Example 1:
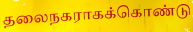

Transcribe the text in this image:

தலைநகராகக்கொண்டு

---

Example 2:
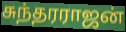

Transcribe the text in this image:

சுந்தரராஜன்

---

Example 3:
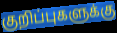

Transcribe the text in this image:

குறிப்புகளுக்கு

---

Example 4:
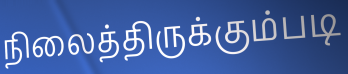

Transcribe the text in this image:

நிலைத்திருக்கும்படி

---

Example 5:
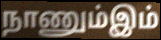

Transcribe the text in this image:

நாணும்இம்